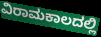
ವಿರಾಮಕಾಲದಲ್ಲಿ